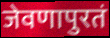
जेवणापुरतं